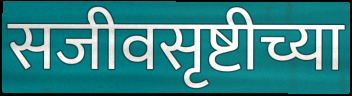
सजीवसृष्टीच्या